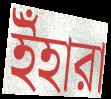
ইঁহারা